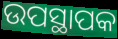
ଉପସ୍ଥାପକ